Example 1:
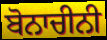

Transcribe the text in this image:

ਬੋਨਾਚੀਨੀ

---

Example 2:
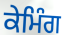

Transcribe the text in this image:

ਕੇਮਿੰਗ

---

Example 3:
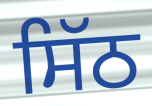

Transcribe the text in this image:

ਸਿੱਠ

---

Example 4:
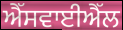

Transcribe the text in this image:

ਐੱਸਵਾਈਐੱਲ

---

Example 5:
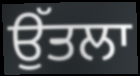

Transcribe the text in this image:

ਉੱਤਲਾ